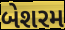
બેશરમ